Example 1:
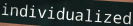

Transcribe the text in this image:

individualized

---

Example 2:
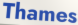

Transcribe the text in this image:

Thames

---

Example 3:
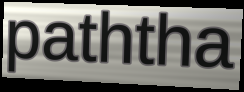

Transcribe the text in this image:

paththa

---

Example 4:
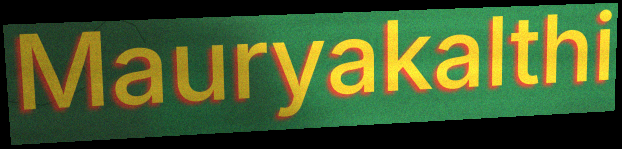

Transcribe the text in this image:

Mauryakalthi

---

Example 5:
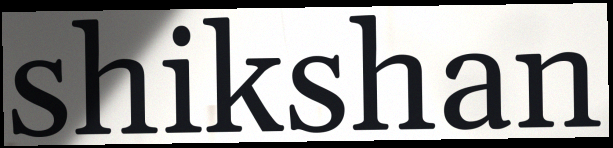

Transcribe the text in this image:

shikshan